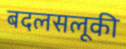
बदलसलूकी